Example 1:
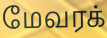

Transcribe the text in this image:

மேவரக்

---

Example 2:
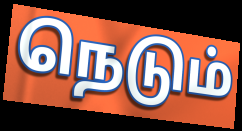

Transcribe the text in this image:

நெடும்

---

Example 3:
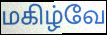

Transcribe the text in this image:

மகிழ்வே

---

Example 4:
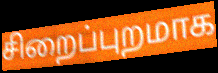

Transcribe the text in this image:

சிறைப்புறமாக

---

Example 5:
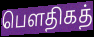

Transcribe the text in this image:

பௌதிகத்